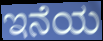
ಇನೆಯ